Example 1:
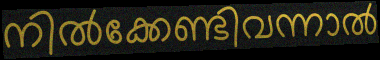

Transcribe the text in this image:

നിൽക്കേണ്ടിവന്നാൽ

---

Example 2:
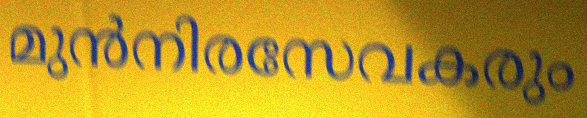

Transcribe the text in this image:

മുൻനിരസേവകരും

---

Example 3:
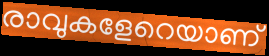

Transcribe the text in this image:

രാവുകളേറെയാണ്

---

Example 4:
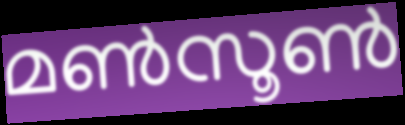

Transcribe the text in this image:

മൺസൂൺ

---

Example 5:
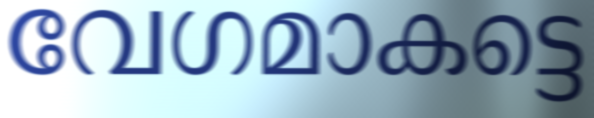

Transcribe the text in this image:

വേഗമാകട്ടെ